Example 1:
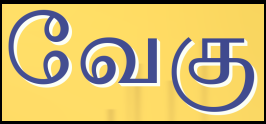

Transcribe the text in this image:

வேகு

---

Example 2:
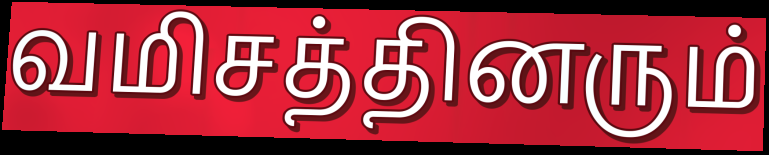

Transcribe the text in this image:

வமிசத்தினரும்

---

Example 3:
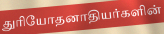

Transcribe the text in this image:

துரியோதனாதியர்களின்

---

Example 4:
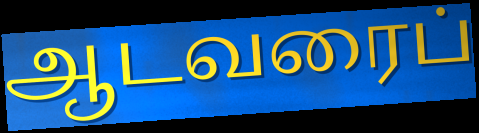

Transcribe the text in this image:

ஆடவரைப்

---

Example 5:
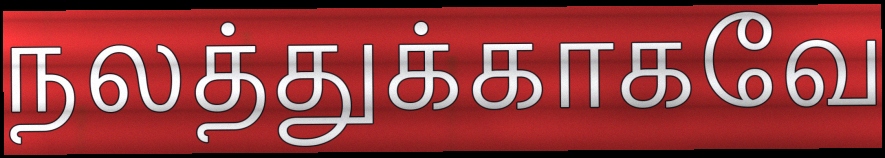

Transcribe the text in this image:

நலத்துக்காகவே